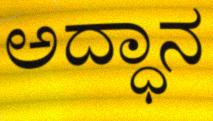
ಅದ್ಧಾನ